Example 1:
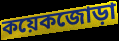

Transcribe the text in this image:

কয়েকজোড়া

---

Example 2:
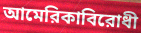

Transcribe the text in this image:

আমেরিকাবিরোধী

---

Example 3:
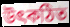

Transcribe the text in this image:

উৎকঠিত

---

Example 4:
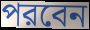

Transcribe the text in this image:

পরবেন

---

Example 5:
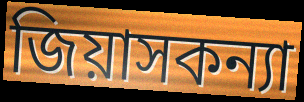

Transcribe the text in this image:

জিয়াসকন্যা